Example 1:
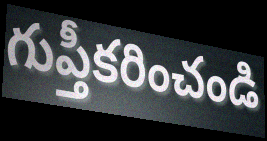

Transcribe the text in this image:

గుప్తీకరించండి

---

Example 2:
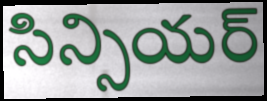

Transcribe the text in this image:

సిన్సియర్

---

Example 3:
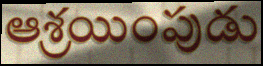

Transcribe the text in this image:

ఆశ్రయింపుడు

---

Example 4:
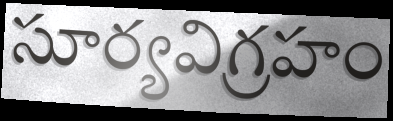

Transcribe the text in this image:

సూర్యవిగ్రహం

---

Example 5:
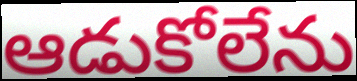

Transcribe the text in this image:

ఆడుకోలేను